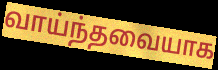
வாய்ந்தவையாக